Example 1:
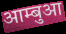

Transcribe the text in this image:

आम्बुआ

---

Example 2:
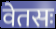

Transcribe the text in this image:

वेतसः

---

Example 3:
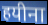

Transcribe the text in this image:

हयीना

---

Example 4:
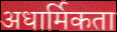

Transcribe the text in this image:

अधार्मिकता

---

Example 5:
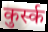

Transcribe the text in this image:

कुर्स्क